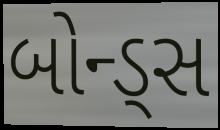
બોન્ડ્સ